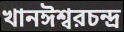
খানঈশ্বরচন্দ্র